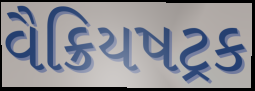
વૈક્રિયષટ્રક